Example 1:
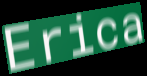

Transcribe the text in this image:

Erica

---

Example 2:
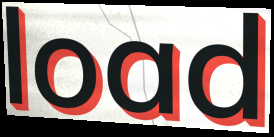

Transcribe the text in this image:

load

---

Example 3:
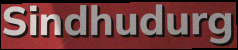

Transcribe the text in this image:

Sindhudurg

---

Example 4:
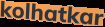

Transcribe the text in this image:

kolhatkar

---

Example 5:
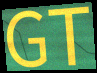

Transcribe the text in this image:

GT